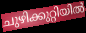
ചുഴിക്കുറ്റിയിൽ